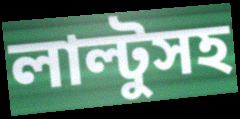
লাল্টুসহ